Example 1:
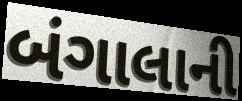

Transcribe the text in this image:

બંગાલાની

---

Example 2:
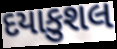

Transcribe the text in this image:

દયાકુશલ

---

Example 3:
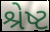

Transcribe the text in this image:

શ્રેષ્ટ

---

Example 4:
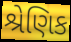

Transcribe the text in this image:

શ્રેણિક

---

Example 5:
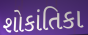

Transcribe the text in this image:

શોકાંતિકા